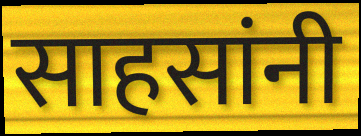
साहसांनी